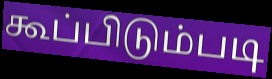
கூப்பிடும்படி